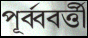
পূর্ব্ববর্ত্তী